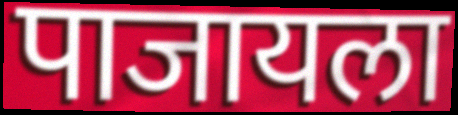
पाजायला